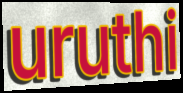
uruthi